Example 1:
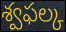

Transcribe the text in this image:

శ్వఫల్క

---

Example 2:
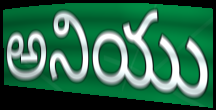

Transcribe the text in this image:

అనియు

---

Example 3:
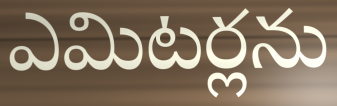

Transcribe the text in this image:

ఎమిటర్లను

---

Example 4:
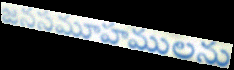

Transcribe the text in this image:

జనసమూహములను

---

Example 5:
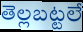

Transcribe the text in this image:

తెల్లబట్టలే